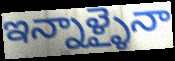
ఇన్నాళ్ళైనా